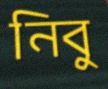
নিবু